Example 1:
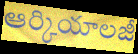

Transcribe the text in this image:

ఆర్కియాలజీ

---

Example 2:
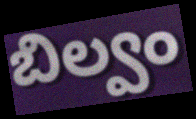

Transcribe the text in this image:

బిల్వం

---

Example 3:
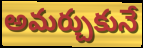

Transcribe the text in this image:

అమర్చుకునే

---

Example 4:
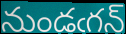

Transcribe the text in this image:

నుండఁగన్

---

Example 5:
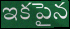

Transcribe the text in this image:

ఇకపైన